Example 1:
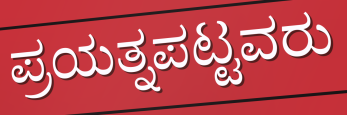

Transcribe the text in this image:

ಪ್ರಯತ್ನಪಟ್ಟವರು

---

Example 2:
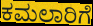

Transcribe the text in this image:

ಕಮಲಾರಿಗೆ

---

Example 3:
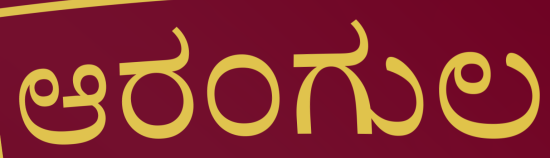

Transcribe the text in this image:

ಆರಂಗುಲ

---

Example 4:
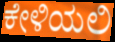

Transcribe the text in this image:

ಕೇಳಿಯಲಿ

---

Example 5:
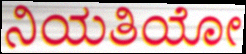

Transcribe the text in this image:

ನಿಯತಿಯೋ